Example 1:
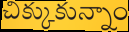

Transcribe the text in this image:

చిక్కుకున్నాం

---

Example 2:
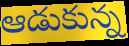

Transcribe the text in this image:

ఆడుకున్న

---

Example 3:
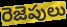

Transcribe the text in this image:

రెజెపులు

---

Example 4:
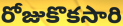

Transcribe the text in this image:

రోజుకొకసారి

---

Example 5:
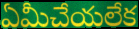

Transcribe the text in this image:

ఏమీచేయలేక